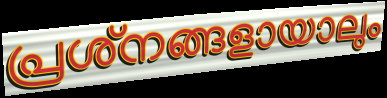
പ്രശ്‌നങ്ങളായാലും